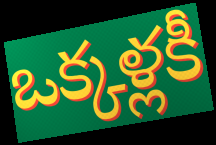
ఒక్కళ్లకీ